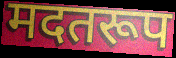
मदतरूप